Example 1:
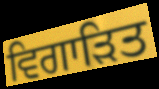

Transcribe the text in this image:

ਵਿਗਾੜਿਤ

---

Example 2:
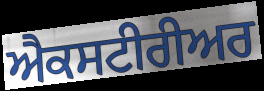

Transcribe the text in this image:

ਐਕਸਟੀਰੀਅਰ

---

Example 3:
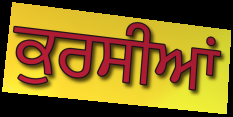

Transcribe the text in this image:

ਕੁਰਸੀਆਂ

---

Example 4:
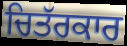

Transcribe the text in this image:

ਚਿਤੱਰਕਾਰ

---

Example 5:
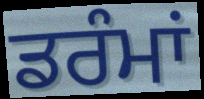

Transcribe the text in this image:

ਡਰੰਮਾਂ